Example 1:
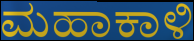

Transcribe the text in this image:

ಮಹಾಕಾಳಿ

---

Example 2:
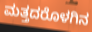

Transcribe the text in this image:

ಮತ್ತದರೊಳಗಿನ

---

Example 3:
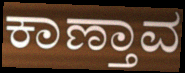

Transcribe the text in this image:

ಕಾಣ್ತಾವ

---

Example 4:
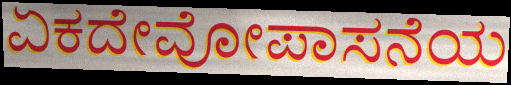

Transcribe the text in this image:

ಏಕದೇವೋಪಾಸನೆಯ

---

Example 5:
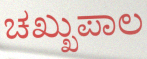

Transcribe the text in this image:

ಚಖ್ಖುಪಾಲ